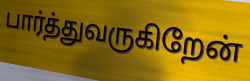
பார்த்துவருகிறேன்